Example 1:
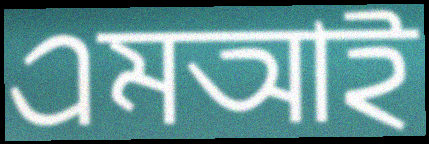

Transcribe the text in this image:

এমআই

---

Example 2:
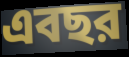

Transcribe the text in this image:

এবছর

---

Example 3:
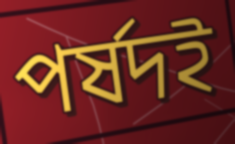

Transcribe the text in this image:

পর্ষদই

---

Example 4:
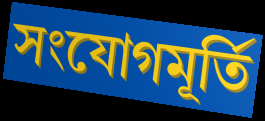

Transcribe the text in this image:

সংযোগমূর্তি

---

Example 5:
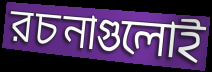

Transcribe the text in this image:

রচনাগুলোই